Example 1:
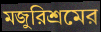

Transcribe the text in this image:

মজুরিশ্রমের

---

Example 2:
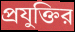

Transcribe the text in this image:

প্রযুক্তির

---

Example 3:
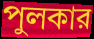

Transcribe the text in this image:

পুলকার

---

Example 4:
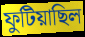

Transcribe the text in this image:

ফুটিয়াছিল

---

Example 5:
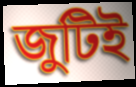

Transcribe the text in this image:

জুটিই